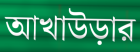
আখাউড়ার